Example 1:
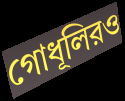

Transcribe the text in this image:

গোধূলিরও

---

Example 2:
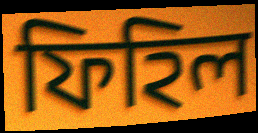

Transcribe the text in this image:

ফিহিল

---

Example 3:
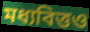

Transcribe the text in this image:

মধ্যবিত্তও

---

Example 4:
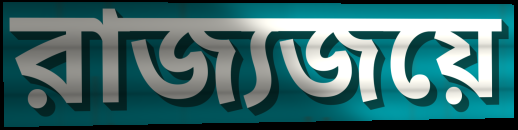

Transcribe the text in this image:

রাজ্যজয়ে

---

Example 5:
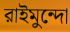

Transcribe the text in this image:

রাইমুন্দো